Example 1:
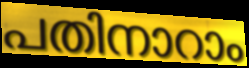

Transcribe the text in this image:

പതിനാറാം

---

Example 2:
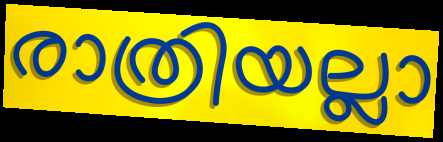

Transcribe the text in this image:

രാത്രിയല്ലാ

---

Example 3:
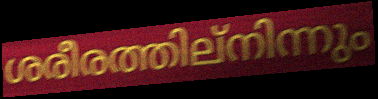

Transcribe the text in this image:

ശരീരത്തില്നിന്നും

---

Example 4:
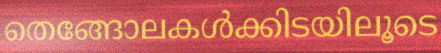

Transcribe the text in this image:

തെങ്ങോലകൾക്കിടയിലൂടെ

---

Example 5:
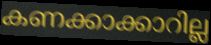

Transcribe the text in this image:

കണക്കാക്കാറില്ല